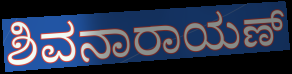
ಶಿವನಾರಾಯಣ್